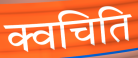
क्वचिति